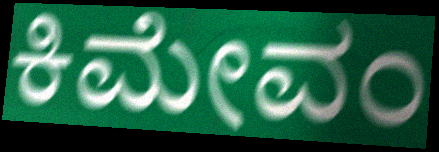
ಕಿಮೇವಂ